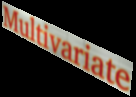
Multivariate